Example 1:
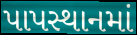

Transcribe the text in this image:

પાપસ્થાનમાં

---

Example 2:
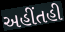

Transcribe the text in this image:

અહીંતહી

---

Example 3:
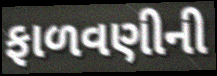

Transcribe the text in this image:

ફાળવણીની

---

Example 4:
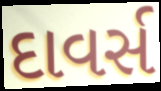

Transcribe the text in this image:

દાવર્સ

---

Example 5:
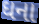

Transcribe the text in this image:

ઘના